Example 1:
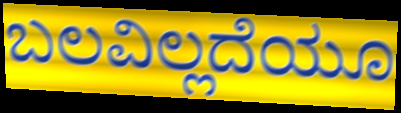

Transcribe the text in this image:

ಬಲವಿಲ್ಲದೆಯೂ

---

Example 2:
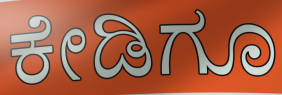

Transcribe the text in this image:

ಕೇಡಿಗೂ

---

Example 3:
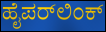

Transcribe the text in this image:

ಹೈಪರ್‌ಲಿಂಕ್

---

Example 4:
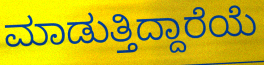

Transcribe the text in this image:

ಮಾಡುತ್ತಿದ್ದಾರೆಯೆ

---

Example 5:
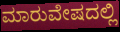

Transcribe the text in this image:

ಮಾರುವೇಷದಲ್ಲಿ